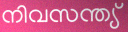
നിവസന്ത്യ്